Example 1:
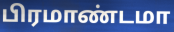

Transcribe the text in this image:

பிரமாண்டமா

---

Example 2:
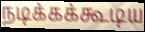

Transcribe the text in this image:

நடிக்கக்கூடிய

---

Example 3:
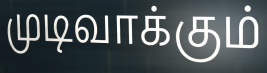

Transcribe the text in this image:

முடிவாக்கும்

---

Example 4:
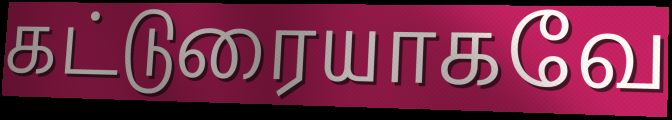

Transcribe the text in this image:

கட்டுரையாகவே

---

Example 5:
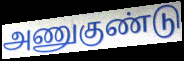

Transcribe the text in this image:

அணுகுண்டு